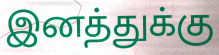
இனத்துக்கு